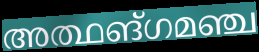
അത്ഥങ്ഗമഞ്ച